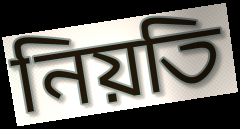
নিয়তি